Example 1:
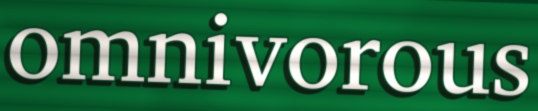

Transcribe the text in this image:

omnivorous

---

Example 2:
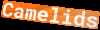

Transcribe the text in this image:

Camelids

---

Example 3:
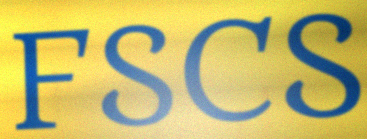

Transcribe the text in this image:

FSCS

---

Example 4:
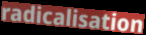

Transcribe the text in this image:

radicalisation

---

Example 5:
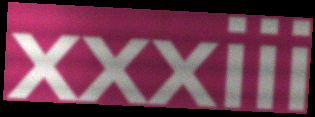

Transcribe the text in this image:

xxxiii